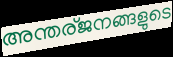
അന്തര്ജനങ്ങളുടെ